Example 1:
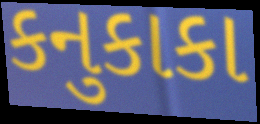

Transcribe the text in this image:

કનુકાકા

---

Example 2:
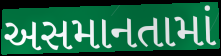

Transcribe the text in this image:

અસમાનતામાં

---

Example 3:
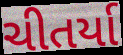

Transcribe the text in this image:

ચીતર્યા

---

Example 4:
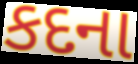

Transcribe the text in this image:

કદના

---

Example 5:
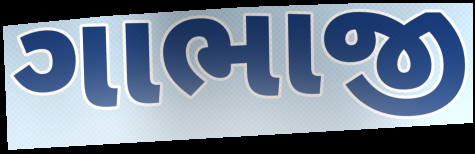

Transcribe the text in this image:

ગાભાજી